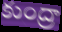
కుంద్రా